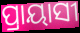
ପ୍ରାୟାସୀ